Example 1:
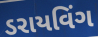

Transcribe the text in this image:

ડરાયવિંગ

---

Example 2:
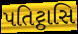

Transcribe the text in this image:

પતિટ્ઠાસિ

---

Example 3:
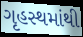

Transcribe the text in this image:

ગૃહસ્થમાંથી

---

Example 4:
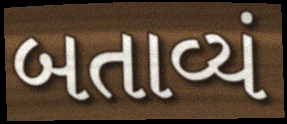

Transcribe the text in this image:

બતાવ્યં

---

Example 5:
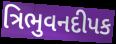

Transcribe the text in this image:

ત્રિભુવનદીપક